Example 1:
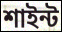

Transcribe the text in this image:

শাইন্ট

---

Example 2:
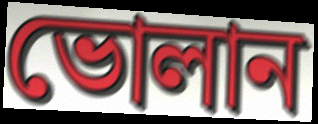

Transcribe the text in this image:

ভোলান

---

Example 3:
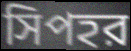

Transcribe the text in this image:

সিপহর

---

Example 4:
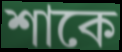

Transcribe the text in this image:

শাকে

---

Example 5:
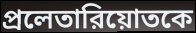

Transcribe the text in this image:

প্রলেতারিয়োতকে